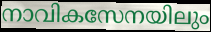
നാവികസേനയിലും